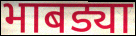
भाबड्या